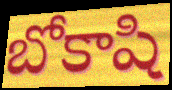
బోకాషి